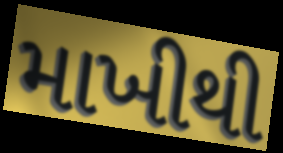
માખીથી